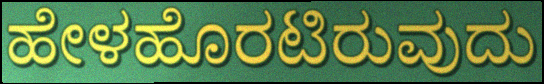
ಹೇಳಹೊರಟಿರುವುದು